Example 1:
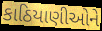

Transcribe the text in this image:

કાઠિયાણીઓને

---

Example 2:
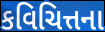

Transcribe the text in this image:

કવિચિત્તના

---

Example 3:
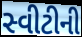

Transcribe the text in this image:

સ્વીટીની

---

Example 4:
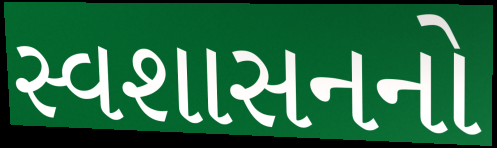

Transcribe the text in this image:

સ્વશાસનનો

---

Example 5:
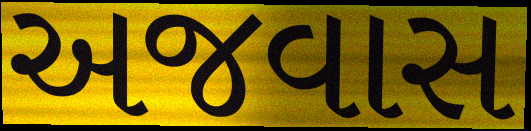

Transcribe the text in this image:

અજવાસ